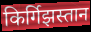
किर्गिझस्तान